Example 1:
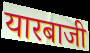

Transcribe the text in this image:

यारबाजी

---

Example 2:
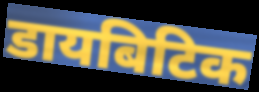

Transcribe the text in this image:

डायबिटिक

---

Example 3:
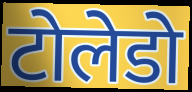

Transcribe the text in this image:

टोलेडो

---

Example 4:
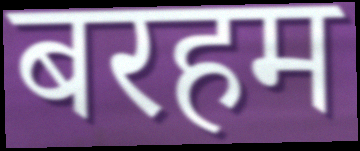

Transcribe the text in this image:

बरहम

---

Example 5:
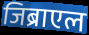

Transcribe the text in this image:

जिब्राएल